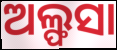
ଅଲ୍ଫସା